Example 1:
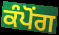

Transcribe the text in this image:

ਕੰਪੋਂਗ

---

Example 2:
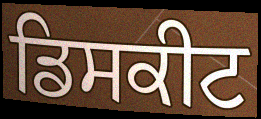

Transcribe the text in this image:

ਡਿਸਕੀਟ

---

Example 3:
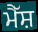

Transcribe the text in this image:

ਮੈੱਸ਼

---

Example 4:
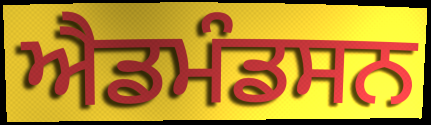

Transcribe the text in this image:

ਐਡਮੰਡਸਨ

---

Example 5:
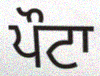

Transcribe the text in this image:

ਪੌਟਾ